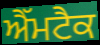
ਐੱਮਟੈਕ